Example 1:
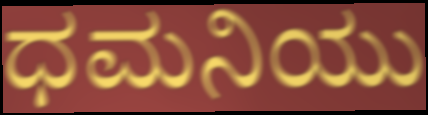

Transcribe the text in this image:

ಧಮನಿಯು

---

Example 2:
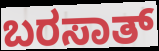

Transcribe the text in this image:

ಬರಸಾತ್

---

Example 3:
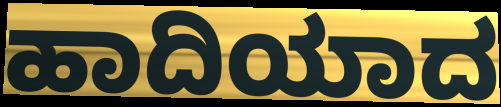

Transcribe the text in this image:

ಹಾದಿಯಾದ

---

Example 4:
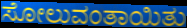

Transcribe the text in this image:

ಸೋಲುವಂತಾಯಿತು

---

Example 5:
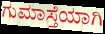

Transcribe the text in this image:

ಗುಮಾಸ್ತೆಯಾಗಿ